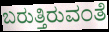
ಬರುತ್ತಿರುವಂತೆ